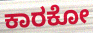
ಕಾರಕೋ